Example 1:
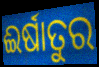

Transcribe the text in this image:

ଈର୍ଷାତୁର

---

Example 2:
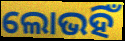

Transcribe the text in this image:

ଲୋଭହିଁ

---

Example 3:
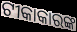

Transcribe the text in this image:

ଟୀକାକାରଙ୍କ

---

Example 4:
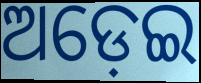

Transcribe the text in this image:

ଅଡ଼େଇ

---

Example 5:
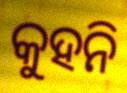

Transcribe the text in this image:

କୁହନି